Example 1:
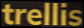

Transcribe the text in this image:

trellis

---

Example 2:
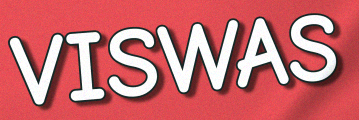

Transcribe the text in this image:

VISWAS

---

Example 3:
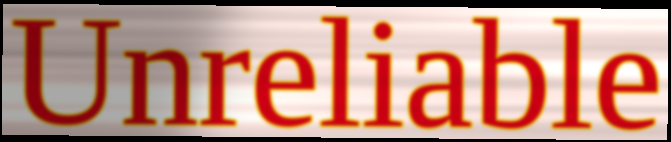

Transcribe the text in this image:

Unreliable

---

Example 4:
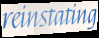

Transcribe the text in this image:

reinstating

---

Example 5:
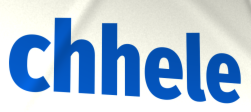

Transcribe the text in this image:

chhele